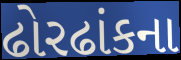
ઢોરઢાંકના